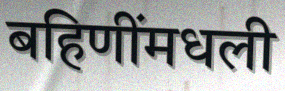
बहिणींमधली